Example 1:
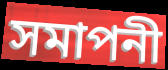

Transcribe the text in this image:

সমাপনী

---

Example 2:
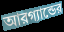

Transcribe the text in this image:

আরগ্যান্ডের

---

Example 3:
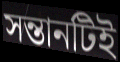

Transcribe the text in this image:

সন্তানটিই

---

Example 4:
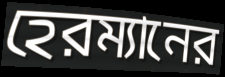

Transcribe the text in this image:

হেরম্যানের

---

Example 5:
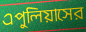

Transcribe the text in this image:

এপুলিয়াসের